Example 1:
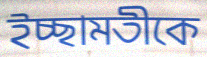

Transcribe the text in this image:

ইচ্ছামতীকে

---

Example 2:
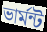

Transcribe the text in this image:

ভার্মন্ট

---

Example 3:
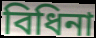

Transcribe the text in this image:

বিধিনা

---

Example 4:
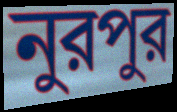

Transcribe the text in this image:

নুরপুর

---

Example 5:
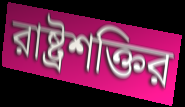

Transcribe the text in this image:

রাষ্ট্রশক্তির